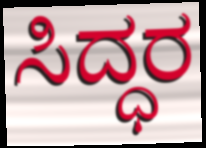
ಸಿದ್ಧರ